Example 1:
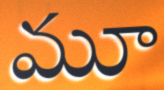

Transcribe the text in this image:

మూ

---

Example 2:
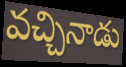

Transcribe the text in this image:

వచ్చినాడు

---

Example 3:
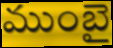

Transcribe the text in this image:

ముంబై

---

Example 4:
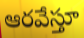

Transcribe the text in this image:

ఆరవేస్తూ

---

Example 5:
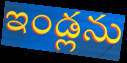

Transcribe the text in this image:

ఇండ్లను